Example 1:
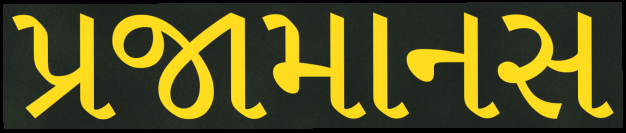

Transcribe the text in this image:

પ્રજામાનસ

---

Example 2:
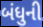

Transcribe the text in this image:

બંધુની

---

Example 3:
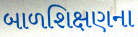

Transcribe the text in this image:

બાળશિક્ષણના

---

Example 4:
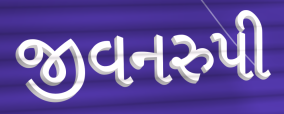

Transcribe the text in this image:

જીવનરુપી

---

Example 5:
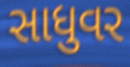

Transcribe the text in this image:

સાધુવર